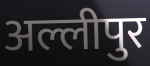
अल्लीपुर